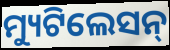
ମ୍ୟୁଟିଲେସନ୍